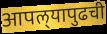
आपल्यापुढची